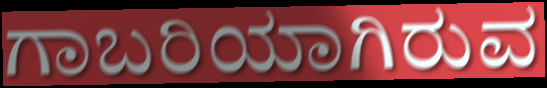
ಗಾಬರಿಯಾಗಿರುವ